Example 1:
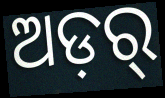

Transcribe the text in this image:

ଅଡ଼ର୍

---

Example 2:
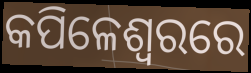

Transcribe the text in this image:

କପିଳେଶ୍ୱରରେ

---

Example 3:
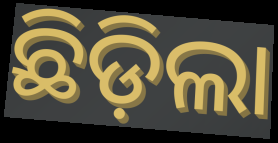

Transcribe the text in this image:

ଛିଡ଼ିଲା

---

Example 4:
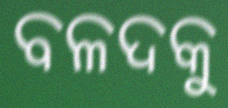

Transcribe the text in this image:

ବଳଦକୁ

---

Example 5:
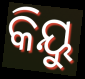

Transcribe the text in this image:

କିୟୁ